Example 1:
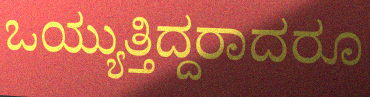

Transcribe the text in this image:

ಒಯ್ಯುತ್ತಿದ್ದರಾದರೂ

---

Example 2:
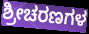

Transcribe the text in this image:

ಶ್ರೀಚರಣಗಳ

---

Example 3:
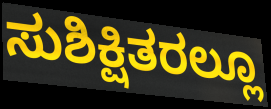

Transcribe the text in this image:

ಸುಶಿಕ್ಷಿತರಲ್ಲೂ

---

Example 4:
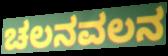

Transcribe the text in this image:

ಚಲನವಲನ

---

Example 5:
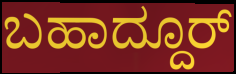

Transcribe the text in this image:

ಬಹಾದ್ದೂರ್